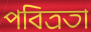
পবিত্ৰতা